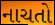
નાચતો